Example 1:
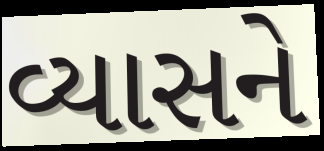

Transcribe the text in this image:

વ્યાસને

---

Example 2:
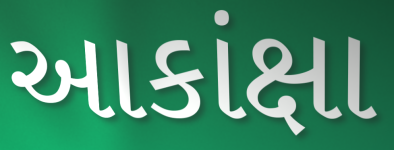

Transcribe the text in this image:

આકાંક્ષા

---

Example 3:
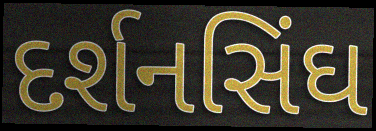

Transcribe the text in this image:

દર્શનસિંઘ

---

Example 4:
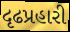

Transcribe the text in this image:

દૃઢપ્રહારી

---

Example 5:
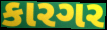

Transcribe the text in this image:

કારગર